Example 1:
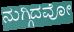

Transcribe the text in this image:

ನುಗ್ಗಿದವೋ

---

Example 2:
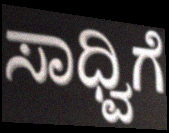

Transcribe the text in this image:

ಸಾಧ್ವಿಗೆ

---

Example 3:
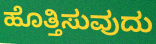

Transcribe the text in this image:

ಹೊತ್ತಿಸುವುದು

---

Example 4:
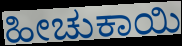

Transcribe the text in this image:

ಹೀಚುಕಾಯಿ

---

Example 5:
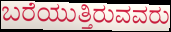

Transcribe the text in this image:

ಬರೆಯುತ್ತಿರುವವರು